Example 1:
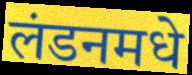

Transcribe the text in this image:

लंडनमधे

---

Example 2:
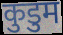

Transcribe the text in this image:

कुडुम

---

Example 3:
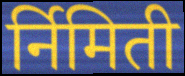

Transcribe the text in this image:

र्निमिती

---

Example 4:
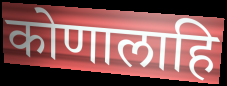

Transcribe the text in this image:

कोणालाहि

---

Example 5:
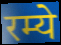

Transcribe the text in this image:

रम्ये